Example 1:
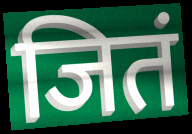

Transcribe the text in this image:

जितं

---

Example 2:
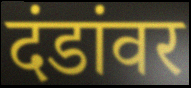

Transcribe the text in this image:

दंडांवर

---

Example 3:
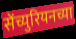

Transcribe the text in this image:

सेंच्युरियनच्या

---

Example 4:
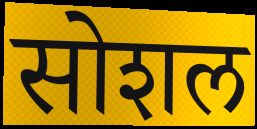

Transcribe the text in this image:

सोशल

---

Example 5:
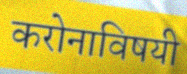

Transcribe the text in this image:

करोनाविषयी